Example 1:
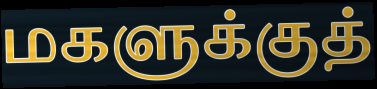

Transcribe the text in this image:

மகளுக்குத்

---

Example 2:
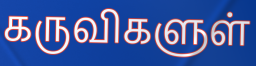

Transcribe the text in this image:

கருவிகளுள்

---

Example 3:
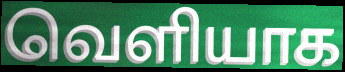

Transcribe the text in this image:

வெளியாக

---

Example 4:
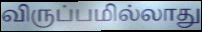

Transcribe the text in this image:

விருப்பமில்லாது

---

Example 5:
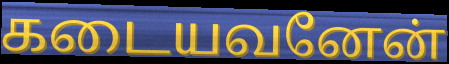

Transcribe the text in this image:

கடையவனேன்